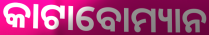
କାଟାବୋମ୍ୟାନ